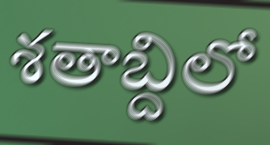
శతాబ్దిలో